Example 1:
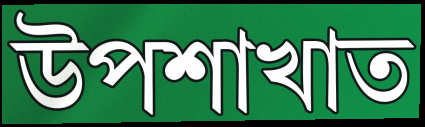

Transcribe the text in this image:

উপশাখাত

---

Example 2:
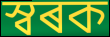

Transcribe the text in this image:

স্বৰক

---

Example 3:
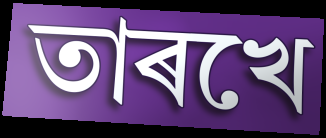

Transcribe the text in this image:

তাৰখে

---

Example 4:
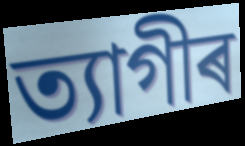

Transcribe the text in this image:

ত্যাগীৰ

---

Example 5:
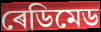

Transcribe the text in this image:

ৰেডিমেড